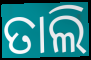
ତାଲି